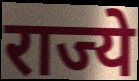
राज्ये